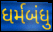
ધર્મબંધુ